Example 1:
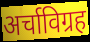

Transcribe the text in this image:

अर्चाविग्रह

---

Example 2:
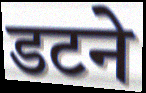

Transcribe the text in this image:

डटने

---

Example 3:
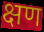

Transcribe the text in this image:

क्षण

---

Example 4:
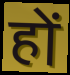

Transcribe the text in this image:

हों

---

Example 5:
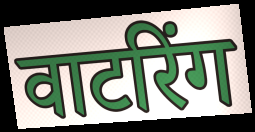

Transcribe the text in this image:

वाटरिंग